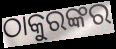
ଠାକୁରଙ୍କର